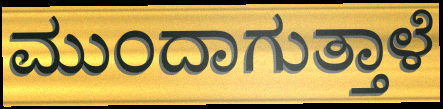
ಮುಂದಾಗುತ್ತಾಳೆ